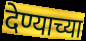
देण्याच्या